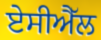
ਏਸੀਐੱਲ